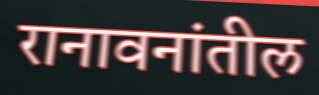
रानावनांतील